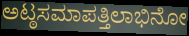
ಅಟ್ಠಸಮಾಪತ್ತಿಲಾಭಿನೋ